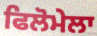
ਫਿਲੋਮੇਲਾ